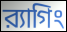
র‍্যাগিং